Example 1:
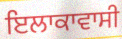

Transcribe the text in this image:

ਇਲਾਕਾਵਾਸੀ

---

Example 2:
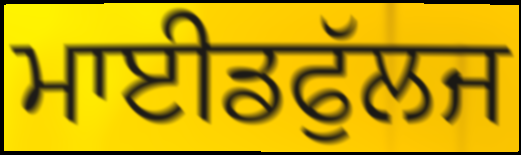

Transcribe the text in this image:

ਮਾਈਡਫੁੱਲਜ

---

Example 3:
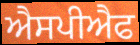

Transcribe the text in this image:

ਐਸਪੀਐਫ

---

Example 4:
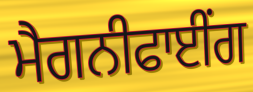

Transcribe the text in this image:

ਮੈਗਨੀਫਾਈਂਗ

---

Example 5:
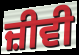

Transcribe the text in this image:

ਜ਼ੀਵੀ